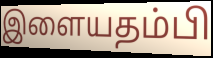
இளையதம்பி